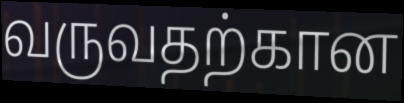
வருவதற்கான